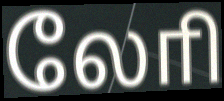
லேரி